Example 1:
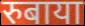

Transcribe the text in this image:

रुबाया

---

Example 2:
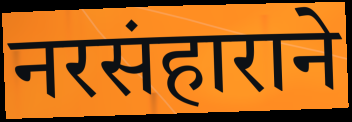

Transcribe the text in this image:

नरसंहाराने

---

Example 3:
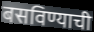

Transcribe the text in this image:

बसविण्याची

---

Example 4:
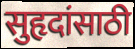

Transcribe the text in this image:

सुहृदांसाठी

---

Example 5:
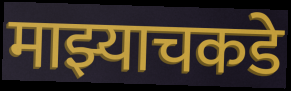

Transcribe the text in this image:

माझ्याचकडे